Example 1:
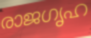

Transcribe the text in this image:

രാജഗൃഹ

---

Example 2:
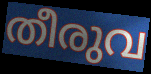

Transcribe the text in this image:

തീരുവ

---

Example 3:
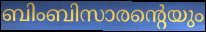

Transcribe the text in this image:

ബിംബിസാരന്റെയും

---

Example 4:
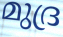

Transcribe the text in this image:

മുദ്ര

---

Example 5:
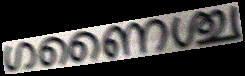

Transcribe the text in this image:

ഗണൈശ്ച